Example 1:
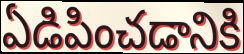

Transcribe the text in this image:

ఏడిపించడానికి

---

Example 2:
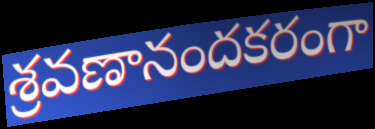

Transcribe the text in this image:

శ్రవణానందకరంగా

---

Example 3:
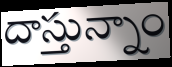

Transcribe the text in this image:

దాస్తున్నాం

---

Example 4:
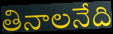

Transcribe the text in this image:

తినాలనేది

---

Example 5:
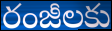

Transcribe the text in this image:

రంజీలకు